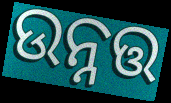
ଉନ୍ନତ୍ତ